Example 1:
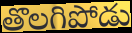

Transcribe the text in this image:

తొలగిపోడు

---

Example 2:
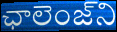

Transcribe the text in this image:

ఛాలెంజ్‌ని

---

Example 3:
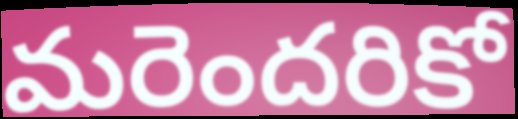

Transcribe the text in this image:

మరెందరికో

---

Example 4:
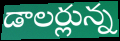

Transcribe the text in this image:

డాలర్లున్న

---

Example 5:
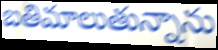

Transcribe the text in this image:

బతిమాలుతున్నాను